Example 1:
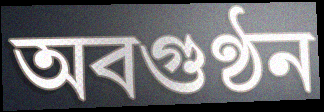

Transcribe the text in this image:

অবগুণ্ঠন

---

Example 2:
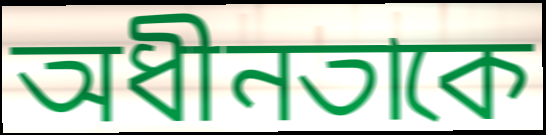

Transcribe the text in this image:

অধীনতাকে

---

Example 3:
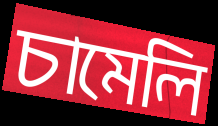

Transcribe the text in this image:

চামেলি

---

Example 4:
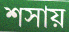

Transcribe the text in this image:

শসায়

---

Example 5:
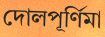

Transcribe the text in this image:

দোলপূর্ণিমা